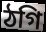
ঠগি